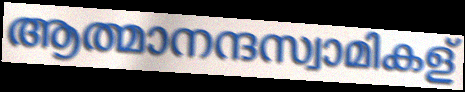
ആത്മാനന്ദസ്വാമികള്